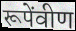
रूपेंवीण